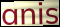
anis